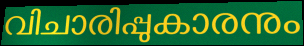
വിചാരിപ്പുകാരനും